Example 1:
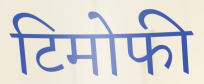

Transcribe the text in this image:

टिमोफी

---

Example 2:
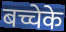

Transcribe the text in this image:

बच्चेके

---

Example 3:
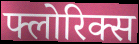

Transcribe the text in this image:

फ्लोरिक्स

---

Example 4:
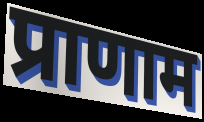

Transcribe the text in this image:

प्राणाम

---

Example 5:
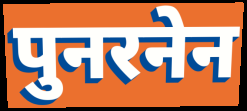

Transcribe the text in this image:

पुनरनेन